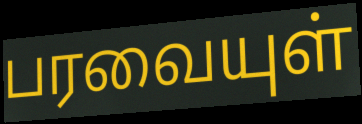
பரவையுள்